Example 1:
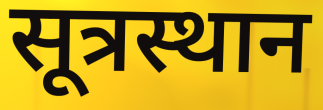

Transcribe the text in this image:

सूत्रस्थान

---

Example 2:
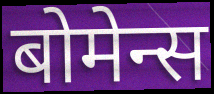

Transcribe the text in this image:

बोमेन्स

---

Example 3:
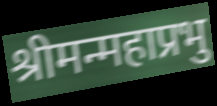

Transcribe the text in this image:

श्रीमन्महाप्रभु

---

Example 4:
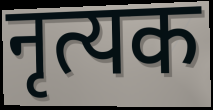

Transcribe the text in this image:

नृत्यक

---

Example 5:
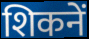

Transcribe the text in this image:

शिकनें